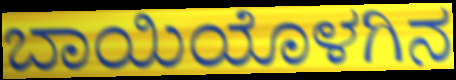
ಬಾಯಿಯೊಳಗಿನ